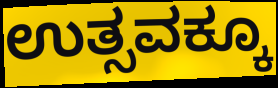
ಉತ್ಸವಕ್ಕೂ